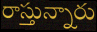
రాస్తున్నారు